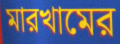
মারখামের